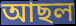
আছল